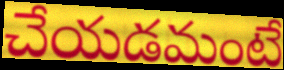
చేయడమంటే